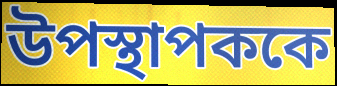
উপস্থাপককে